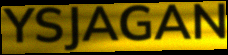
YSJAGAN